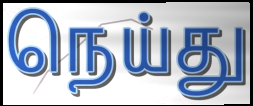
நெய்து